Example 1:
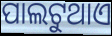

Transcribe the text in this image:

ପାଲଟୁଥାଏ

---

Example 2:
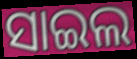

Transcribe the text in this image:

ସାଇଲ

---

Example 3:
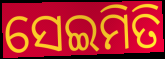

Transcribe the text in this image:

ସେଇମିତି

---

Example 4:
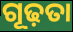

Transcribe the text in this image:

ଗୂଢ଼ତା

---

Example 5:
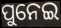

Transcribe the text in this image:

ପୁନେଇ